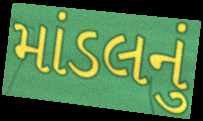
માંડલનું